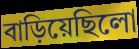
বাড়িয়েছিলো